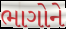
ભાગોને